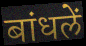
बांधलें